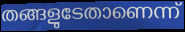
തങ്ങളുടേതാണെന്ന്